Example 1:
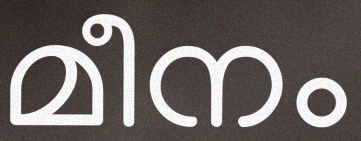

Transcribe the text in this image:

മീനം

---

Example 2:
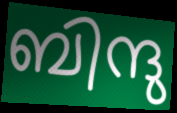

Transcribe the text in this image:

ബിന്ദു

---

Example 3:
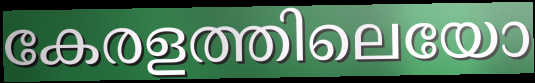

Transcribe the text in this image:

കേരളത്തിലെയോ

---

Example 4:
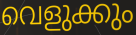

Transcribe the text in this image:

വെളുക്കും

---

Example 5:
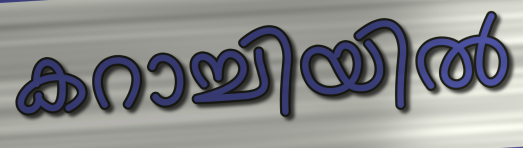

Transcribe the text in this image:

കറാച്ചിയിൽ